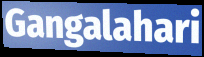
Gangalahari